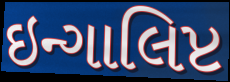
ઇન્ગાલિપ્ટ